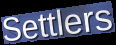
Settlers